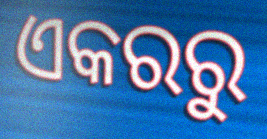
ଏକରରୁ